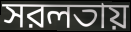
সরলতায়